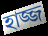
হাজ্জ